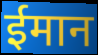
ईमान